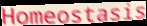
Homeostasis